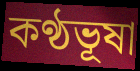
কণ্ঠভূষা